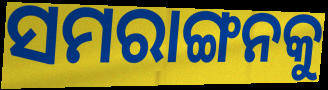
ସମରାଙ୍ଗନକୁ